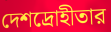
দেশদ্রোহীতার